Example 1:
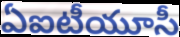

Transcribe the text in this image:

ఏఐటీయూసీ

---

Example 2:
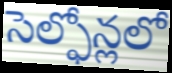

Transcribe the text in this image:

సెల్ఫోన్లలో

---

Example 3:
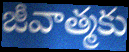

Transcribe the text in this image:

జీవాత్మకు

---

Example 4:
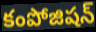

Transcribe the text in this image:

కంపోజిషన్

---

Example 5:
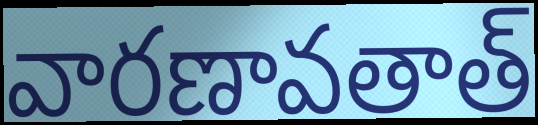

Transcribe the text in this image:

వారణావతాత్